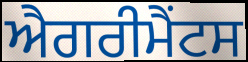
ਐਗਰੀਮੈਂਟਸ